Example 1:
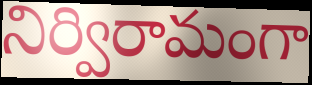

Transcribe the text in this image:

నిర్విరామంగా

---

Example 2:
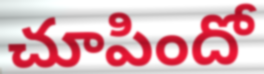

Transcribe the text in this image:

చూపిందో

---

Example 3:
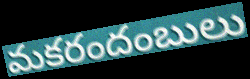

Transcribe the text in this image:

మకరందంబులు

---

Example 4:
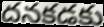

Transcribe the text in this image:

దనకడకు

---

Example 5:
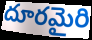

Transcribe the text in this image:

దూరమైరి